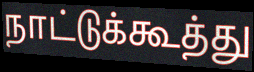
நாட்டுக்கூத்து